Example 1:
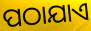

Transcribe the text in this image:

ପଠାଯାଏ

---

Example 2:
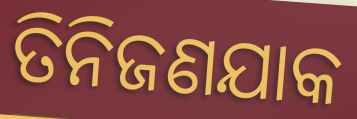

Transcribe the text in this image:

ତିନିଜଣଯାକ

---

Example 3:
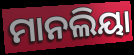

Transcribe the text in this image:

ମାନଲିୟା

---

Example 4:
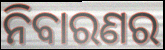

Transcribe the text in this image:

ନିବାରଣର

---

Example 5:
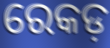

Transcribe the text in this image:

ରେକଡ଼